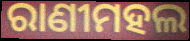
ରାଣୀମହଲ